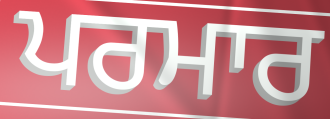
ਪਰਮਾਰ